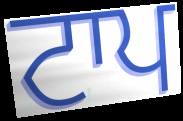
ਟਾਪ